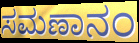
ಸಮಣಾನಂ